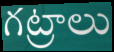
గట్రాలు